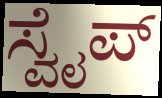
ಸ್ವೈಪ್